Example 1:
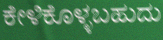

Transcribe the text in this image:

ಕೇಳಿಕೊಳ್ಳಬಹುದು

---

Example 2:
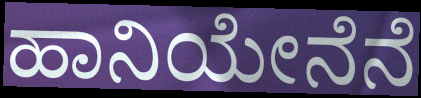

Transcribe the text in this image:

ಹಾನಿಯೇನೆನೆ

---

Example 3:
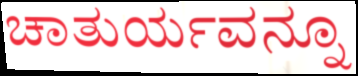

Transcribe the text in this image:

ಚಾತುರ್ಯವನ್ನೂ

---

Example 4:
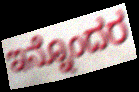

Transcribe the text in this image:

ಇನ್ನೊಂದರ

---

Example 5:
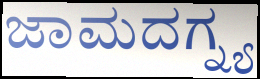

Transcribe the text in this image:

ಜಾಮದಗ್ನ್ಯ